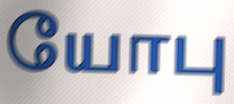
யோபு